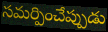
సమర్పించేప్పుడు